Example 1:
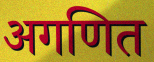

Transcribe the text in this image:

अगणित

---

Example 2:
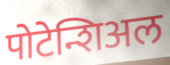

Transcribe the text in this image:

पोटेन्शिअल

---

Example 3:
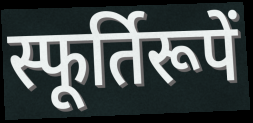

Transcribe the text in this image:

स्फूर्तिरूपें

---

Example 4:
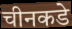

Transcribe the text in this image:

चीनकडे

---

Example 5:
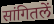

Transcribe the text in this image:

सांगितलें